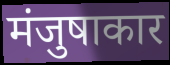
मंजुषाकार